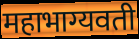
महाभाग्यवती